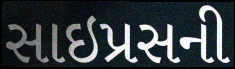
સાઇપ્રસની